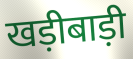
खड़ीबाड़ी